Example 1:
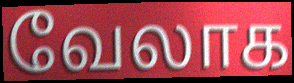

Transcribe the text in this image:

வேலாக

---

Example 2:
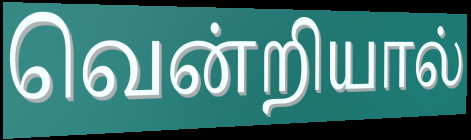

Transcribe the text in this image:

வென்றியால்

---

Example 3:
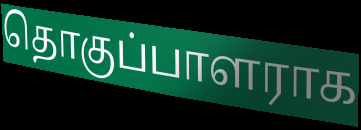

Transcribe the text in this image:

தொகுப்பாளராக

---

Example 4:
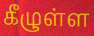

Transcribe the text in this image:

கீழுள்ள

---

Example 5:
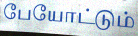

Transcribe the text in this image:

பேயோட்டும்